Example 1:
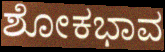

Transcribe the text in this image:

ಶೋಕಭಾವ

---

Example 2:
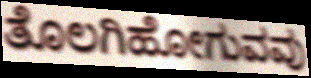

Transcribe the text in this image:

ತೊಲಗಿಹೋಗುವವು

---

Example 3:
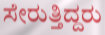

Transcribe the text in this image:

ಸೇರುತ್ತಿದ್ದರು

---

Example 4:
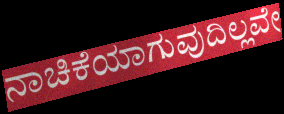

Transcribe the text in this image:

ನಾಚಿಕೆಯಾಗುವುದಿಲ್ಲವೇ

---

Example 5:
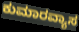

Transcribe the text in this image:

ಕುಮಾರವ್ಯಾಸ